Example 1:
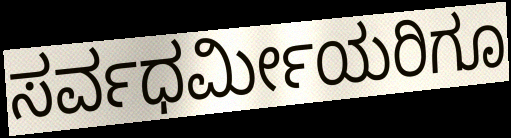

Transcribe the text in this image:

ಸರ್ವಧರ್ಮೀಯರಿಗೂ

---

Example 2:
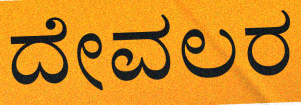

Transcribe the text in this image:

ದೇವಲರ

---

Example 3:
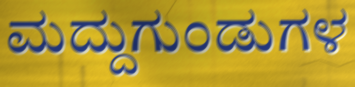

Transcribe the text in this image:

ಮದ್ದುಗುಂಡುಗಳ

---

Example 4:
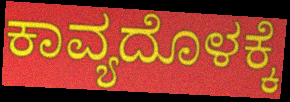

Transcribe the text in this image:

ಕಾವ್ಯದೊಳಕ್ಕೆ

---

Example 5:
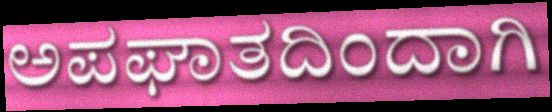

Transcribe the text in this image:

ಅಪಘಾತದಿಂದಾಗಿ